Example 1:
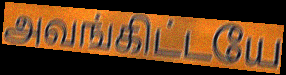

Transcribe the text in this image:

அவங்கிட்டயே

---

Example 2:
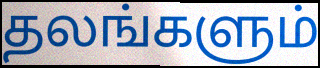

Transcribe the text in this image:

தலங்களும்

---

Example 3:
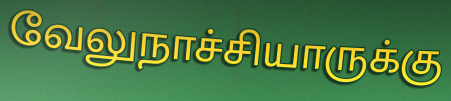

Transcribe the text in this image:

வேலுநாச்சியாருக்கு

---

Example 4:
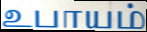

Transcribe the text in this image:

உபாயம்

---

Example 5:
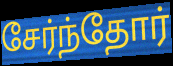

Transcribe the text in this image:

சேர்ந்தோர்